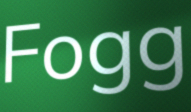
Fogg